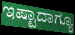
ಇಷ್ಟಾದಾಗ್ಯೂ